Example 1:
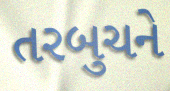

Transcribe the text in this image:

તરબુચને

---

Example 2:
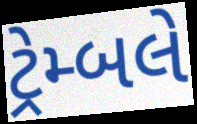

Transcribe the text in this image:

ટ્રેમ્બલે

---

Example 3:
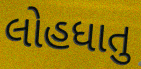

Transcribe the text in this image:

લોહધાતુ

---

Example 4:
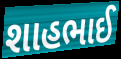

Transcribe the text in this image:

શાહભાઈ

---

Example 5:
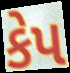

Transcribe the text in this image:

કેપ